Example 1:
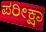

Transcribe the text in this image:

ಪರೀಕ್ಷಾ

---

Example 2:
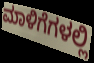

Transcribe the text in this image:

ಮಾಳಿಗೆಗಳಲ್ಲಿ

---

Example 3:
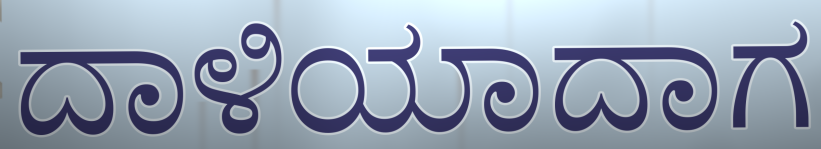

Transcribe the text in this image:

ದಾಳಿಯಾದಾಗ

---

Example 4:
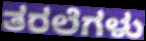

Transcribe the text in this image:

ತರಲೆಗಳು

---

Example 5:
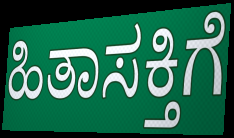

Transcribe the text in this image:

ಹಿತಾಸಕ್ತಿಗೆ